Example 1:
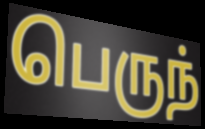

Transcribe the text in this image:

பெருந்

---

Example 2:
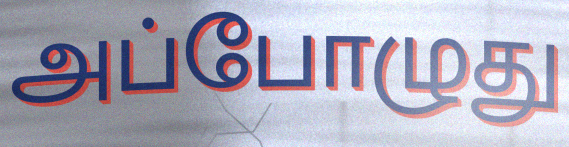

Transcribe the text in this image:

அப்போழுது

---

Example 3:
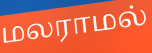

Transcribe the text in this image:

மலராமல்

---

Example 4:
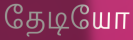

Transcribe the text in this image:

தேடியோ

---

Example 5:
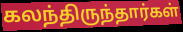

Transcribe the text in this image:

கலந்திருந்தார்கள்